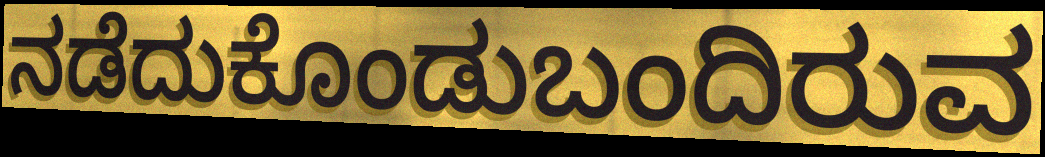
ನಡೆದುಕೊಂಡುಬಂದಿರುವ